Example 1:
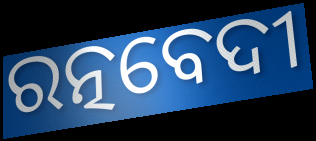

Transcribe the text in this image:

ରତ୍ନବେଦୀ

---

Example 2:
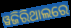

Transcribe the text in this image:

ୱଜିରିଥାଲରେ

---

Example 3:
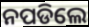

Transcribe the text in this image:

ନପଡିଲେ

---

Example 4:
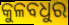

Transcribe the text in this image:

କୁଳବଧୁର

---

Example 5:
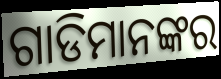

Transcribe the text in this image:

ଗାଡିମାନଙ୍କର